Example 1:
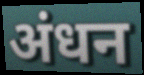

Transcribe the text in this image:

अंधन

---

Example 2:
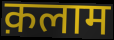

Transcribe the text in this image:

क़लाम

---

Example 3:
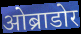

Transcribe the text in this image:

ओब्राडोर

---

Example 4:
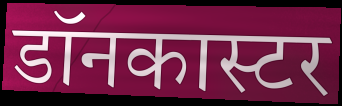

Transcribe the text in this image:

डॉनकास्टर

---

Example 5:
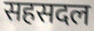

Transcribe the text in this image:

सहसदल